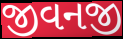
જીવનજી